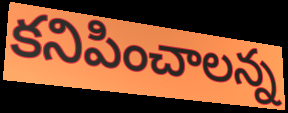
కనిపించాలన్న